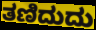
ತಣಿದುದು